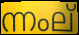
ന്നംല്